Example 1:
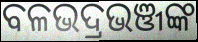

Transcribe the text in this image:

ବଳଭଦ୍ରଭଞ୍ଜଙ୍କ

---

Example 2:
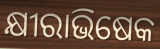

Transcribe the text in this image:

କ୍ଷୀରାଭିଷେକ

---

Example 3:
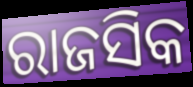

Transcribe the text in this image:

ରାଜସିକ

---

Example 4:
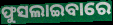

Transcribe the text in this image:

ଫୁସଲାଇବାରେ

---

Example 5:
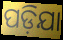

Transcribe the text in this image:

ପଡ଼ିଯା